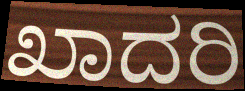
ಖಾದರಿ